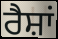
ਰੈਸ਼ਾਂ